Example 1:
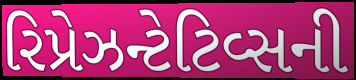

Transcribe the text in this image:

રિપ્રેઝન્ટેટિવ્સની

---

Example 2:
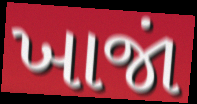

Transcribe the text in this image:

ખાજાં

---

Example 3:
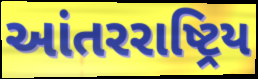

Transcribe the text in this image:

આંતરરાષ્ટ્રિય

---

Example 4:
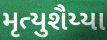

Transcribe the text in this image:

મૃત્યુશૈય્યા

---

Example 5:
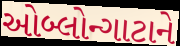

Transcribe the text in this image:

ઓબ્લોન્ગાટાને